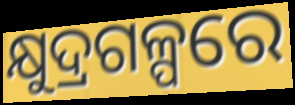
କ୍ଷୁଦ୍ରଗଳ୍ପରେ